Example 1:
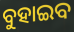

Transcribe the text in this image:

ବୁହାଇବ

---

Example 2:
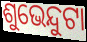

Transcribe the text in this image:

ଶୁଭେନ୍ଦୁଟା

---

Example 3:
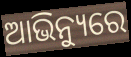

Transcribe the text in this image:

ଆଭିନ୍ୟୁରେ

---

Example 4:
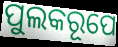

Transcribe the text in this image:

ପୁଲକରୂପେ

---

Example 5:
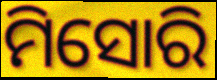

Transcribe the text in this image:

ମିସୋରି